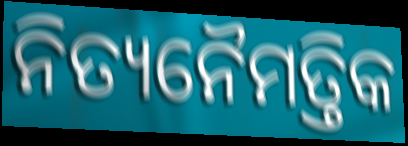
ନିତ୍ୟନୈମତ୍ତିକ